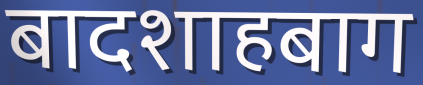
बादशाहबाग